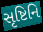
સૃષ્ટિનિ